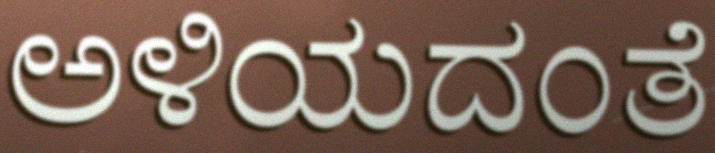
ಅಳಿಯದಂತೆ